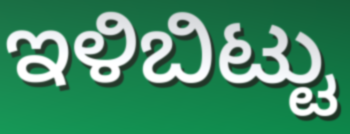
ಇಳಿಬಿಟ್ಟು